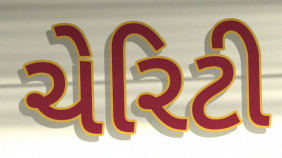
ચેરિટી